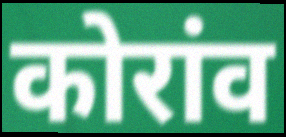
कोरांव